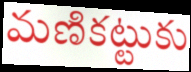
మణికట్టుకు